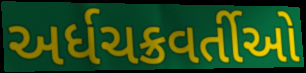
અર્ધચક્રવર્તીઓ